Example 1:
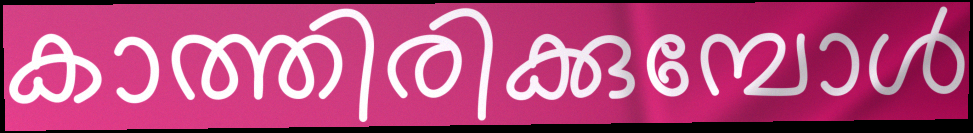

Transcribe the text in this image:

കാത്തിരിക്കുമ്പോൾ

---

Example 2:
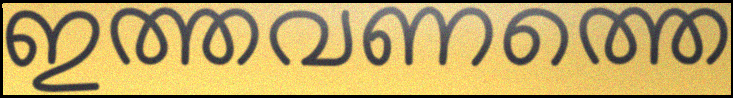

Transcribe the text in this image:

ഇത്തവണത്തെ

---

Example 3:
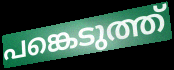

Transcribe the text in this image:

പങ്കെടുത്ത്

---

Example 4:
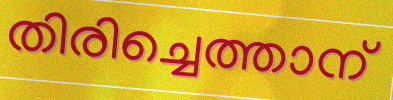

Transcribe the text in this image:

തിരിച്ചെത്താന്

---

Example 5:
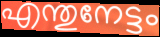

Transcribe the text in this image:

എന്തുനേട്ടം